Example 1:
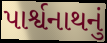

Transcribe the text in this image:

પાર્શ્વનાથનું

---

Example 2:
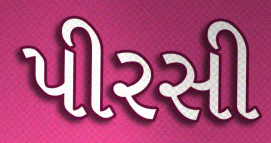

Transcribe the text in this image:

પીરસી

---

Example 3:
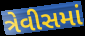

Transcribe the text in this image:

ત્રેવીસમાં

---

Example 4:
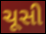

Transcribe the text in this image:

ચૂસી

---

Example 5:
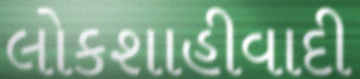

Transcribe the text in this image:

લોકશાહીવાદી